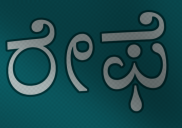
ರೇಫೆ